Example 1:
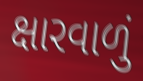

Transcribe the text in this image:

ક્ષારવાળું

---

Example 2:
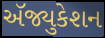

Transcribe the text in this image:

ઍજ્યુકેશન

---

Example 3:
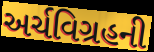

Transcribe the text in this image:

અર્ચવિગ્રહની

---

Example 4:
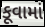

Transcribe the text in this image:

કૂવામાં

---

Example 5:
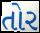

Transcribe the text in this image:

તોર